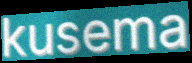
kusema